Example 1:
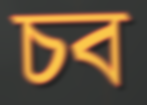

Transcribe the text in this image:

চব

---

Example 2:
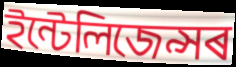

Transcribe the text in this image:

ইন্টেলিজেন্সৰ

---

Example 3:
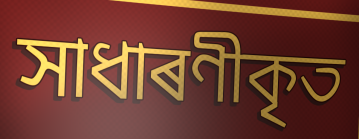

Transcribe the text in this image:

সাধাৰণীকৃত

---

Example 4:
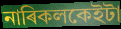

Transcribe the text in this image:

নাৰিকলকেইটা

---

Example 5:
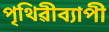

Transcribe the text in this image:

পৃথিৱীব্যাপী